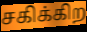
சகிக்கிற